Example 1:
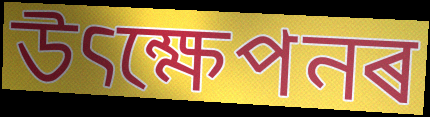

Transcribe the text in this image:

উৎক্ষেপনৰ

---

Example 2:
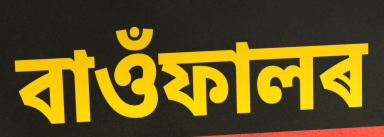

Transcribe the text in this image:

বাওঁফালৰ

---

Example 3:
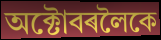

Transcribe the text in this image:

অক্টোবৰলৈকে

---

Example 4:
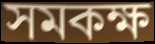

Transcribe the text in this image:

সমকক্ষ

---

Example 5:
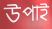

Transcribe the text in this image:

উপাই